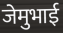
जेमुभाई